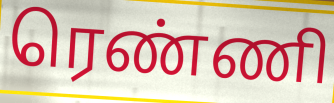
ரெண்ணி